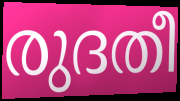
രുദതീ